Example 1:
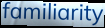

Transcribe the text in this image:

familiarity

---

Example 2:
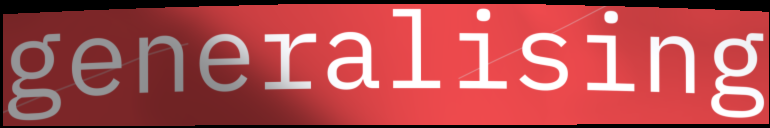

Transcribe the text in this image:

generalising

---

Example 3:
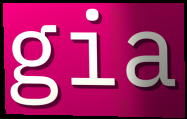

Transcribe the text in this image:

gia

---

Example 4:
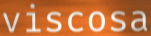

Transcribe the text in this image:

viscosa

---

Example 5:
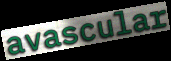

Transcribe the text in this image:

avascular